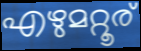
എഴുമറ്റൂര്